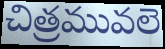
చిత్రమువలె